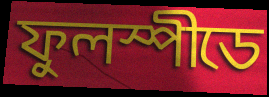
ফুলস্পীডে